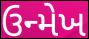
ઉન્મેખ